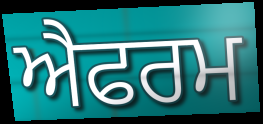
ਐਫਰਮ